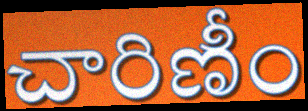
చారిణీం